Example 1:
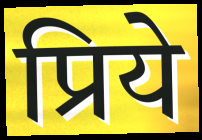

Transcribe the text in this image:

प्रिये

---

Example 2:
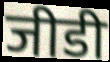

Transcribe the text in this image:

जीडी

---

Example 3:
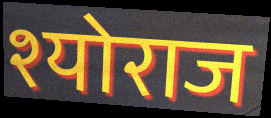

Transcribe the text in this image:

श्योराज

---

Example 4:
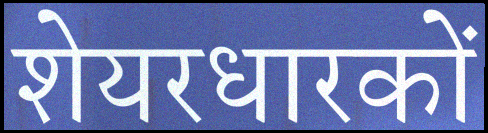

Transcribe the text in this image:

शेयरधारकों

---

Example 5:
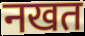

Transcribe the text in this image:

नखत